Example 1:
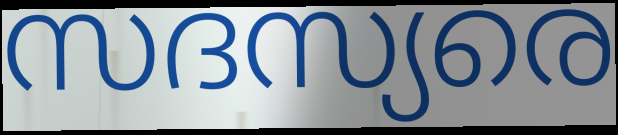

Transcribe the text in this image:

സദസ്യരെ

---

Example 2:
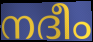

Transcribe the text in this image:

നദീം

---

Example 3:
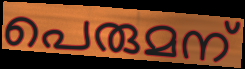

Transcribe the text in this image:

പെരുമന്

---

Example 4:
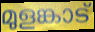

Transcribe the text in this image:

മുളങ്കാട്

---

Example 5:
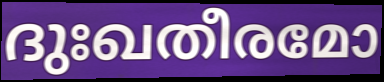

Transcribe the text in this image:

ദുഃഖതീരമോ